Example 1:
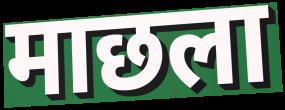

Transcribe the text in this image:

माछला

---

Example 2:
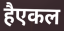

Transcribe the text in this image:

हैएकल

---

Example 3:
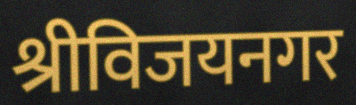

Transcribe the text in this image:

श्रीविजयनगर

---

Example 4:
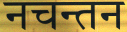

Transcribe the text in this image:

नचन्तन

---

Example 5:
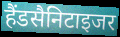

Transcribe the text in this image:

हैंडसैनिटाइजर